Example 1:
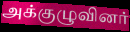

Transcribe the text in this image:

அக்குழுவினர்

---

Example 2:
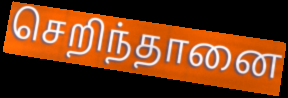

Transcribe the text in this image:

செறிந்தானை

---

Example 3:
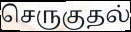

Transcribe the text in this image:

செருகுதல்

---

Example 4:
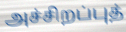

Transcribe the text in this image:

அச்சிறப்புத்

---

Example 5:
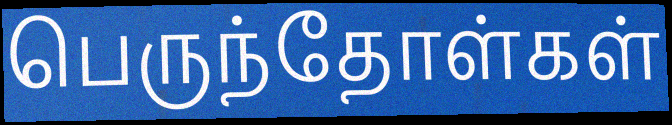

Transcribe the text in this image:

பெருந்தோள்கள்